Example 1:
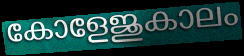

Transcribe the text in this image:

കോളേജുകാലം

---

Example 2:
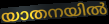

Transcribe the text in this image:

യാതനയിൽ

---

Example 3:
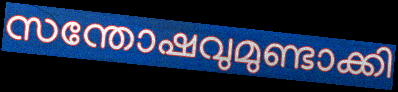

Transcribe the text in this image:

സന്തോഷവുമുണ്ടാക്കി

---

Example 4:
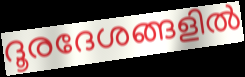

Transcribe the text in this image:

ദൂരദേശങ്ങളിൽ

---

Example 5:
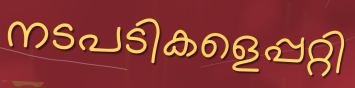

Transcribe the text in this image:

നടപടികളെപ്പറ്റി